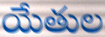
యేతుల